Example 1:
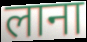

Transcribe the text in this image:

लाना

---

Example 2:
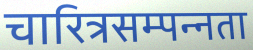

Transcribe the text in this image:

चारित्रसम्पन्नता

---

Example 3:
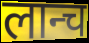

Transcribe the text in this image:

लान्‍च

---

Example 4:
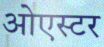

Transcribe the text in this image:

ओएस्टर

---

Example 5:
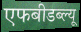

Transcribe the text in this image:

एफबीडब्ल्यू